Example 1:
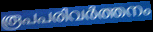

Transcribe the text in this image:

രൂപപരിവർത്തനം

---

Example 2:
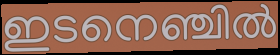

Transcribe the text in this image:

ഇടനെഞ്ചിൽ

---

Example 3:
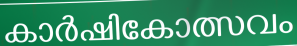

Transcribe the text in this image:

കാർഷികോത്സവം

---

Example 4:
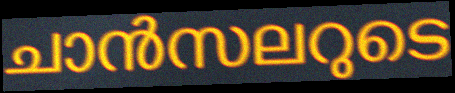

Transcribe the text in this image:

ചാൻസലറുടെ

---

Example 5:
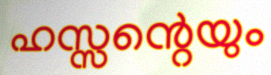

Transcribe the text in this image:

ഹസ്സന്റെയും